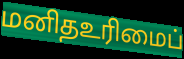
மனிதஉரிமைப்